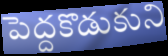
పెద్దకొడుకుని